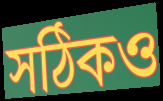
সঠিকও